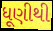
ધૂણીથી